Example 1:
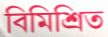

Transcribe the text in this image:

বিমিশ্রিত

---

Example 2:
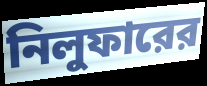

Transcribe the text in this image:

নিলুফারের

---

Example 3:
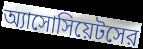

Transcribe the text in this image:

অ্যাসোসিয়েটসের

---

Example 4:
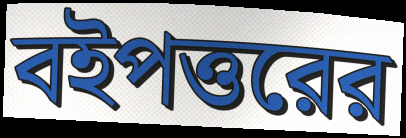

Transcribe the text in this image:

বইপত্তরের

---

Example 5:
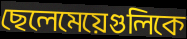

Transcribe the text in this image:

ছেলেমেয়েগুলিকে